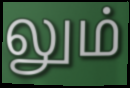
லும்